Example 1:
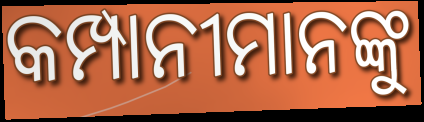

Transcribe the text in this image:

କମ୍ପାନୀମାନଙ୍କୁ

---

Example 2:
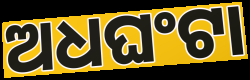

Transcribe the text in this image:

ଅଧଘଂଟା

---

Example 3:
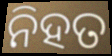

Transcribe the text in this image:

ନିହତ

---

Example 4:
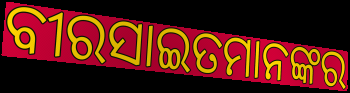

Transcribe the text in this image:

ବୀରସାଇତମାନଙ୍କର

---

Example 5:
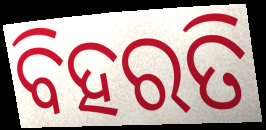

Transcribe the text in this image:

ବିହରତି